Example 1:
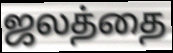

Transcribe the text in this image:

ஜலத்தை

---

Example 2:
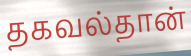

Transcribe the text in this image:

தகவல்தான்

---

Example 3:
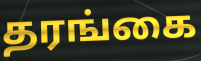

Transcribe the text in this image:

தரங்கை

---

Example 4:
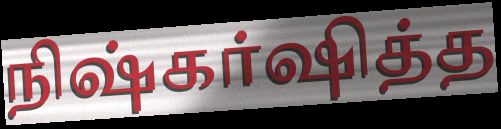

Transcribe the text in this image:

நிஷ்கர்ஷித்த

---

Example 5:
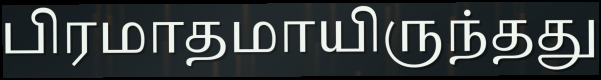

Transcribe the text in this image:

பிரமாதமாயிருந்தது